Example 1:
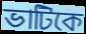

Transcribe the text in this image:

ভাটিকে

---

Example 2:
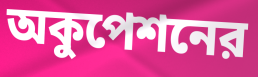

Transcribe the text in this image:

অকুপেশনের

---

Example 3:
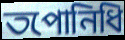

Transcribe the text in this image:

তপোনিধি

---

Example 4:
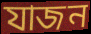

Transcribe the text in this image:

যাজন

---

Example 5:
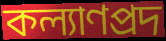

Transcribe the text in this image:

কল্যাণপ্রদ